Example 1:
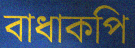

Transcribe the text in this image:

বাধাকপি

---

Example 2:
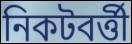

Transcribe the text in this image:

নিকটবর্ত্তী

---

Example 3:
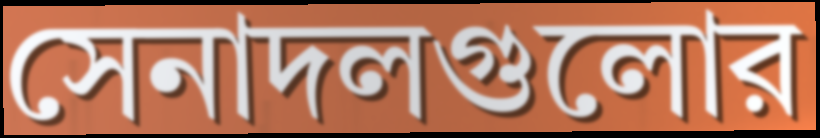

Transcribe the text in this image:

সেনাদলগুলোর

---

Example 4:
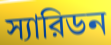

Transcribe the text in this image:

স্যারিডন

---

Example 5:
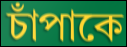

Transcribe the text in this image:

চাঁপাকে